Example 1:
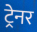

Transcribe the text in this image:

ट्रेनर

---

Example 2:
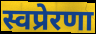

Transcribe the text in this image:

स्वप्रेरणा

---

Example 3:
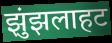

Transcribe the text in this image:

झुंझलाहट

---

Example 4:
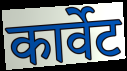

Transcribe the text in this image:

कार्वेट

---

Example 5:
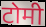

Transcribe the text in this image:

टोमी